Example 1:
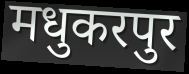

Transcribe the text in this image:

मधुकरपुर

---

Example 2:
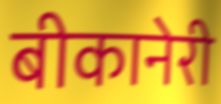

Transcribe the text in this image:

बीकानेरी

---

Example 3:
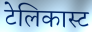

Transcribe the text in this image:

टेलिकास्ट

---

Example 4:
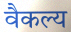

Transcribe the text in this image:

वैकल्य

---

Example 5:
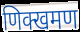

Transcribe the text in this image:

णिक्खमण